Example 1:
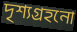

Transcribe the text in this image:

দৃশ্যগ্ৰহনো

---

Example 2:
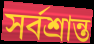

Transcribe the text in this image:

সৰ্বশ্ৰান্ত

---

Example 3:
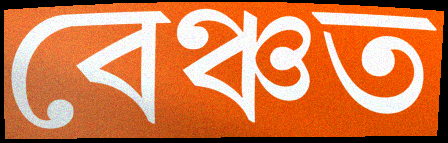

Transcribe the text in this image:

বেঞ্চত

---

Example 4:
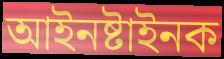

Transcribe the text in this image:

আইনষ্টাইনক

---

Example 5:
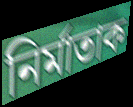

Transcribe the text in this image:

নিৰ্মাতাক